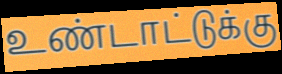
உண்டாட்டுக்கு